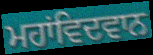
ਮਹਾਂਵਿਦਵਾਨ